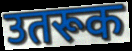
उतरूक